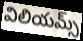
విలియమ్స్